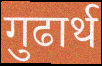
गुढार्थ